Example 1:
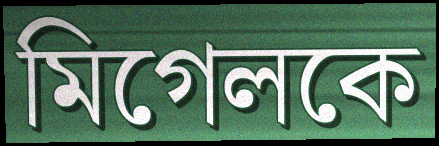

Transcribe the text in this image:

মিগেলকে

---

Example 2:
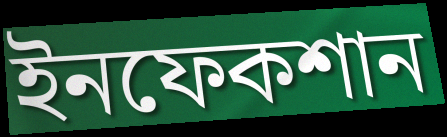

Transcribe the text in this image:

ইনফেকশান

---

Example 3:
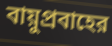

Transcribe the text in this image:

বায়ুপ্রবাহের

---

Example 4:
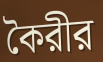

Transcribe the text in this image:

কৈরীর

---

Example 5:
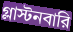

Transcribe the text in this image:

গ্লাস্টনবারি